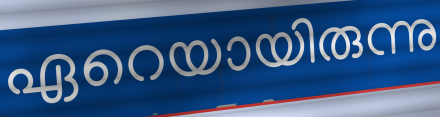
ഏറെയായിരുന്നു